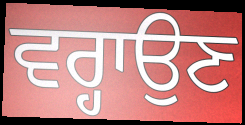
ਵਰ੍ਹਾਉਣ